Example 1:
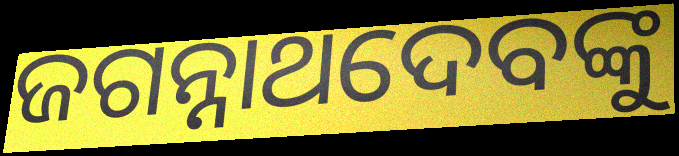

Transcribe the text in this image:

ଜଗନ୍ନାଥଦେବଙ୍କୁ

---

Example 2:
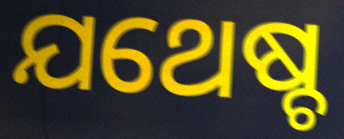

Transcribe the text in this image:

ଯଥେଷ୍ଚ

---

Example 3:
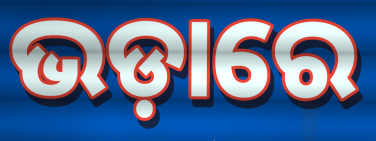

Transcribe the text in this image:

ଭଡ଼ାରେ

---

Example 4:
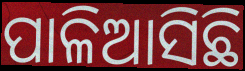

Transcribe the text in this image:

ପାଳିଆସିଛି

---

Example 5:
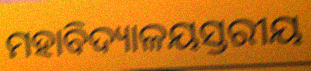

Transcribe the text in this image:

ମହାବିଦ୍ୟାଳୟସ୍ତରୀୟ